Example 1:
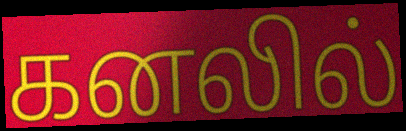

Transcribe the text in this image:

கனலில்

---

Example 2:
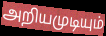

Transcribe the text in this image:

அறியமுடியும்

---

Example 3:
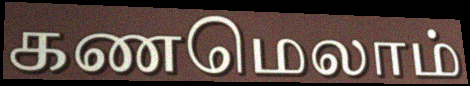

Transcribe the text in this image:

கணமெலாம்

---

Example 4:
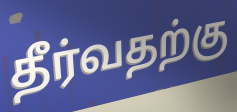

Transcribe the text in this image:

தீர்வதற்கு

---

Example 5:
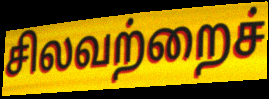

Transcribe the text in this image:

சிலவற்றைச்